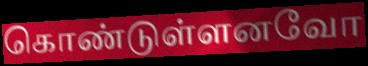
கொண்டுள்ளனவோ